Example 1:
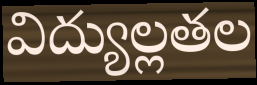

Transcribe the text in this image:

విద్యుల్లతల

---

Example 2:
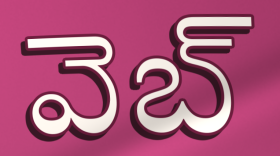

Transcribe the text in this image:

వెబ్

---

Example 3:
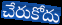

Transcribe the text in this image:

చేరుకోదు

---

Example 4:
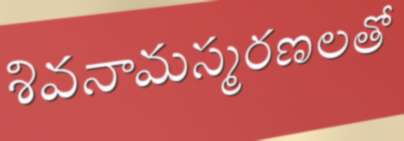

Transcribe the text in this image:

శివనామస్మరణలతో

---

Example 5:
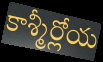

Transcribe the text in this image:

కాశ్మీర్లోయ